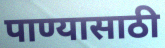
पाण्यासाठी